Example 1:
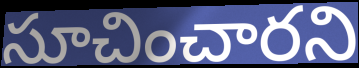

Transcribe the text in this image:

సూచించారని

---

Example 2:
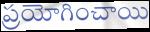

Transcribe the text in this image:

ప్రయోగించాయి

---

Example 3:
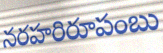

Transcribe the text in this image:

నరహరిరూపంబు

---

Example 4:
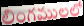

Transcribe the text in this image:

లింగములలో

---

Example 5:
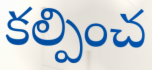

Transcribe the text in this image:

కల్పించ